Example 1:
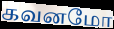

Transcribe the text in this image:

கவனமோ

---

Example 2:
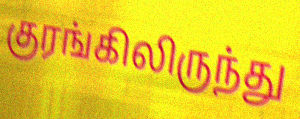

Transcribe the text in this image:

குரங்கிலிருந்து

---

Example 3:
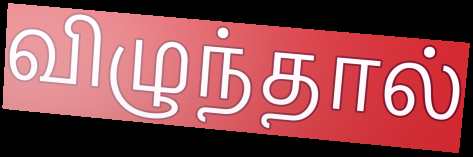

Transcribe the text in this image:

விழுந்தால்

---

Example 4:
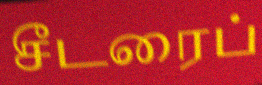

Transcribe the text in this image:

சீடரைப்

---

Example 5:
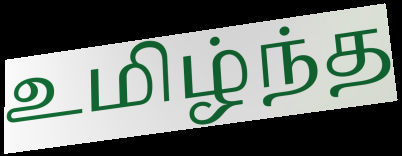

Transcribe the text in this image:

உமிழ்ந்த